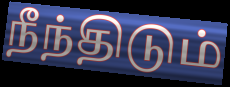
நீந்திடும்